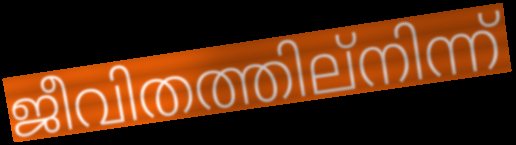
ജീവിതത്തില്നിന്ന്